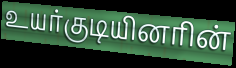
உயர்குடியினரின்